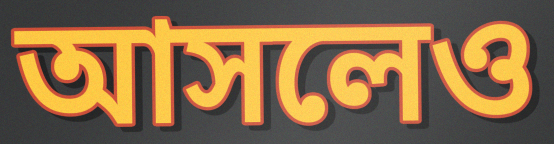
আসলেও